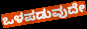
ಒಳಪಡುವುದೇ